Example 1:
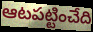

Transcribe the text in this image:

ఆటపట్టించేది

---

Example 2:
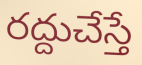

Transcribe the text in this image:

రద్దుచేస్తే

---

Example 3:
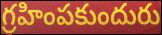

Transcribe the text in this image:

గ్రహింపకుందురు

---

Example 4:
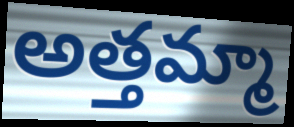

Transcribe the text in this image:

అత్తమ్మా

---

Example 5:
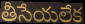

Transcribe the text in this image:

తీసేయలేక